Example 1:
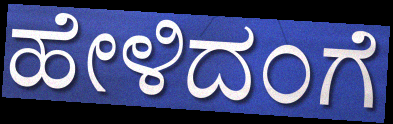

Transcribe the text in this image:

ಹೇಳಿದಂಗೆ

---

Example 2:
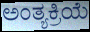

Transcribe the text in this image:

ಅಂತ್ಯಕ್ರಿಯೆ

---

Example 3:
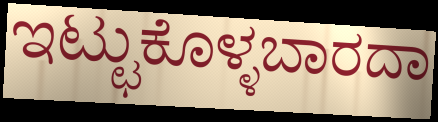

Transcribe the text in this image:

ಇಟ್ಟುಕೊಳ್ಳಬಾರದಾ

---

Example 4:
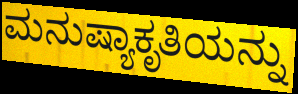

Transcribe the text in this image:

ಮನುಷ್ಯಾಕೃತಿಯನ್ನು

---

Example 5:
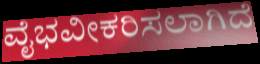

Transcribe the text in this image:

ವೈಭವೀಕರಿಸಲಾಗಿದೆ